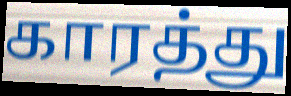
காரத்து